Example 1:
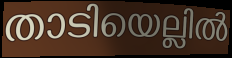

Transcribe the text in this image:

താടിയെല്ലിൽ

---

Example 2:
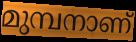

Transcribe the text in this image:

മുമ്പനാണ്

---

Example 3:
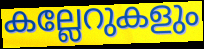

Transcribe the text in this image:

കല്ലേറുകളും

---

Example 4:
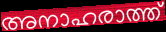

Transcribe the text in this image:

അനാഹരാത്ത്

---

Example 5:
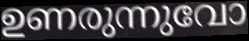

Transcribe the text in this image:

ഉണരുന്നുവോ